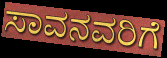
ಸಾವನವರಿಗೆ